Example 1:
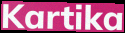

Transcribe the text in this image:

Kartika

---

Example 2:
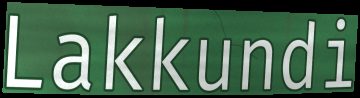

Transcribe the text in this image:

Lakkundi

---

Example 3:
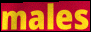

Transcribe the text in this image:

males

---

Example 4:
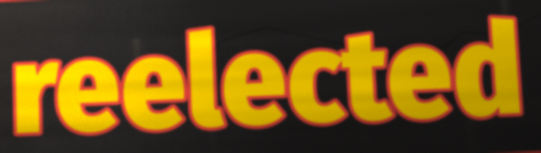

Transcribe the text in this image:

reelected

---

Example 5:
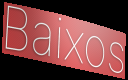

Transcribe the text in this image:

Baixos